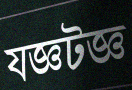
যজ্ঞটজ্ঞ